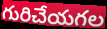
గురిచేయగల